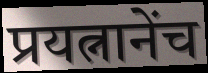
प्रयत्नानेंच